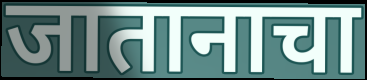
जातानाचा